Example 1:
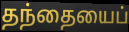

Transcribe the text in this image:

தந்தையைப்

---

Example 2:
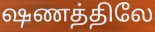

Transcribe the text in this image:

ஷணத்திலே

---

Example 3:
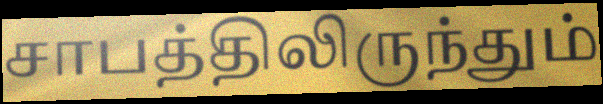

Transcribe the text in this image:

சாபத்திலிருந்தும்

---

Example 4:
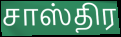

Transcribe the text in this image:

சாஸ்திர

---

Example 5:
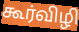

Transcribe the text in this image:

கூர்விழி